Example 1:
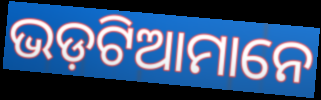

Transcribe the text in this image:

ଭଡ଼ଟିଆମାନେ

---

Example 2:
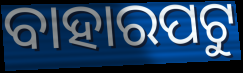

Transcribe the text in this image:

ବାହାରପଟୁ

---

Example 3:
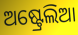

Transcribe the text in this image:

ଅଷ୍ଟ୍ରେଲିଆ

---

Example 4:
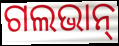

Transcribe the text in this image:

ଗଲଭାନ୍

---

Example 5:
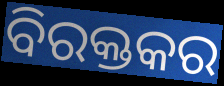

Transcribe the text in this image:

ବିରକ୍ତକର